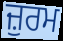
ਜ਼ੁਰਮ